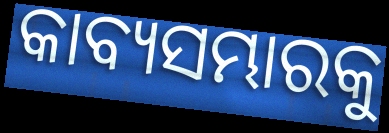
କାବ୍ୟସମ୍ଭାରକୁ